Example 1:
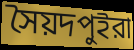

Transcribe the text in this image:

সৈয়দপুইরা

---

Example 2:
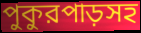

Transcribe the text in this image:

পুকুরপাড়সহ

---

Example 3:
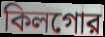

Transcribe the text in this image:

কিলগোর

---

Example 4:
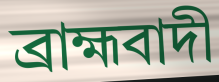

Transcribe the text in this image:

ব্রাহ্মবাদী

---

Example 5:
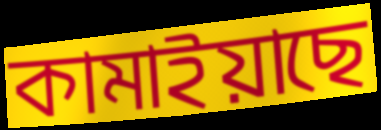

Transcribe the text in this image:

কামাইয়াছে